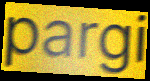
pargi